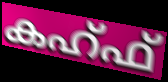
കഹ്ഫ്